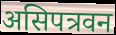
असिपत्रवन